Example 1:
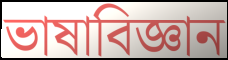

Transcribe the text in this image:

ভাষাবিজ্ঞান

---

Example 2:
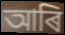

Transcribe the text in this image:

আৰি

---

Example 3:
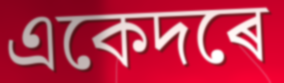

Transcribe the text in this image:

একেদৰে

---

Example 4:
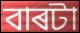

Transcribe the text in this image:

বাৰটা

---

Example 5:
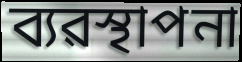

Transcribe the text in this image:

ব্যৱস্থাপনা